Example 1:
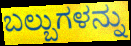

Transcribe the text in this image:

ಬಲ್ಬುಗಳನ್ನು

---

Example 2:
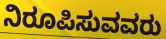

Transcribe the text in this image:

ನಿರೂಪಿಸುವವರು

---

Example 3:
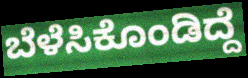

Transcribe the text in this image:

ಬೆಳೆಸಿಕೊಂಡಿದ್ದೆ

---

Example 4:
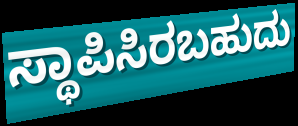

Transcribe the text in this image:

ಸ್ಥಾಪಿಸಿರಬಹುದು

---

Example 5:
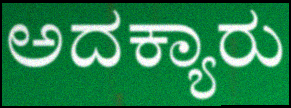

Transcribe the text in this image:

ಅದಕ್ಯಾರು